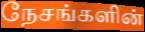
நேசங்களின்